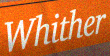
Whither